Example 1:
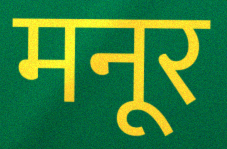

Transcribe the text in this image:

मनूर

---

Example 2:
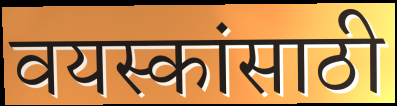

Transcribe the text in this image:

वयस्कांसाठी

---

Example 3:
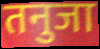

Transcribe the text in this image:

तनुजा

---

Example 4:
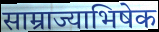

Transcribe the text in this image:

साम्राज्याभिषेक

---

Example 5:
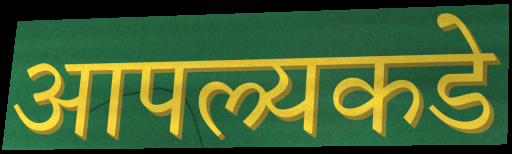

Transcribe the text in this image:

आपल्यकडे